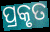
ପ୍ରକୃତ